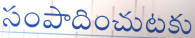
సంపాదించుటకు